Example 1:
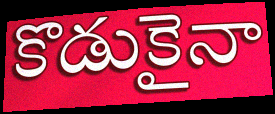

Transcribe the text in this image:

కొడుకైనా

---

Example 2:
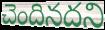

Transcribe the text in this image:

చెందినదని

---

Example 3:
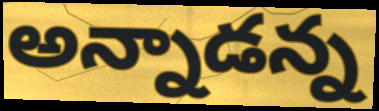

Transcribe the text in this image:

అన్నాడన్న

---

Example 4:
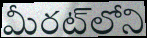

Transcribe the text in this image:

మీరట్‌లోని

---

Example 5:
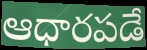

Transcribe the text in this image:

ఆధారపడే